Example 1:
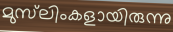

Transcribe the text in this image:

മുസ്‌ലിംകളായിരുന്നു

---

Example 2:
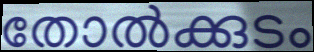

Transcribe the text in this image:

തോൽക്കുടം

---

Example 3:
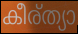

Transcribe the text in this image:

കീര്ത്യാ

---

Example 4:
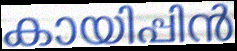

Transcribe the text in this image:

കായിപ്പിൻ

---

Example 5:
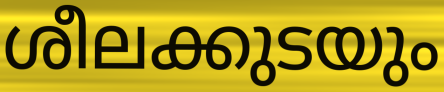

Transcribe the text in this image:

ശീലക്കുടയും